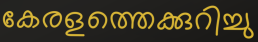
കേരളത്തെക്കുറിച്ചു